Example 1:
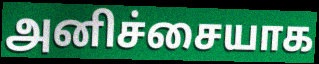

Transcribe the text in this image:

அனிச்சையாக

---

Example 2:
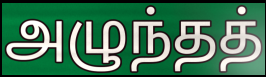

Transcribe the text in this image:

அழுந்தத்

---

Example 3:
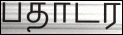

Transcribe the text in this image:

பதாடர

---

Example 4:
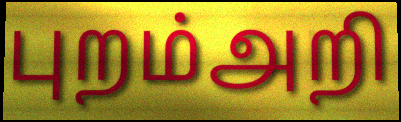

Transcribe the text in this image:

புறம்அறி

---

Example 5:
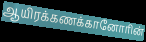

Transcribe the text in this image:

ஆயிரக்கணக்கானோரின்